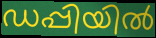
ഡപ്പിയിൽ